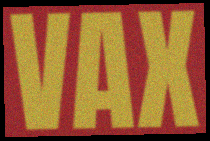
VAX